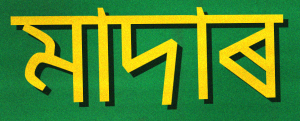
মাদাৰ